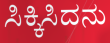
ಸಿಕ್ಕಿಸಿದನು